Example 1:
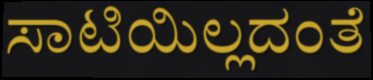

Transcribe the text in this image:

ಸಾಟಿಯಿಲ್ಲದಂತೆ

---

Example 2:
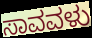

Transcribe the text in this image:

ಸಾವವಳು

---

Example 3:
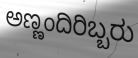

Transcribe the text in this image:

ಅಣ್ಣಂದಿರಿಬ್ಬರು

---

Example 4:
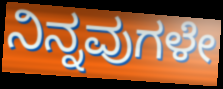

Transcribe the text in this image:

ನಿನ್ನವುಗಳೇ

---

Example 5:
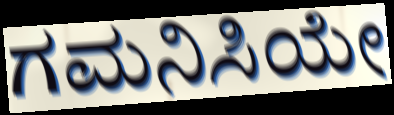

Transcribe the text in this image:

ಗಮನಿಸಿಯೇ